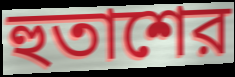
হুতাশের